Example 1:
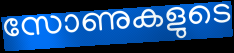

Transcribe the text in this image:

സോണുകളുടെ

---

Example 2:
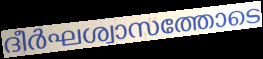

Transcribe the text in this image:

ദീർഘശ്വാസത്തോടെ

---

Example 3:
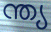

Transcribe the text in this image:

ന്ത്യ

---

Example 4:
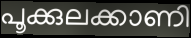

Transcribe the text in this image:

പൂക്കുലക്കാണി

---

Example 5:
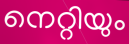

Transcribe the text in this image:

നെറ്റിയും